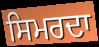
ਸਿਮਰਦਾ